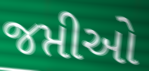
જપ્તીઓ